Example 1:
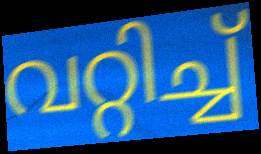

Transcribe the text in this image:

വറ്റിച്ച്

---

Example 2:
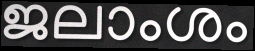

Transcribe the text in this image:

ജലാംശം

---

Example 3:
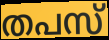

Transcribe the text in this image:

തപസ്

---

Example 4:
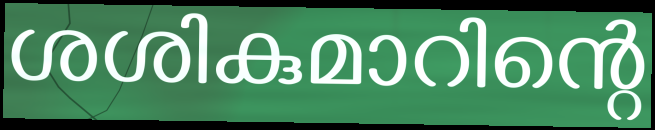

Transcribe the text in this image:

ശശികുമാറിന്റെ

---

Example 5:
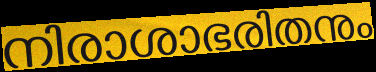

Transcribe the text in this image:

നിരാശാഭരിതനും